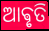
ଆଵୃତି